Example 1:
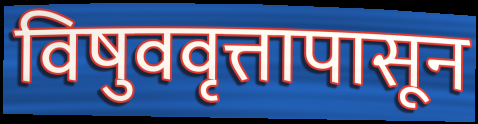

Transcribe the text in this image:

विषुववृत्तापासून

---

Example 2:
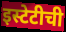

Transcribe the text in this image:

इस्टेटीची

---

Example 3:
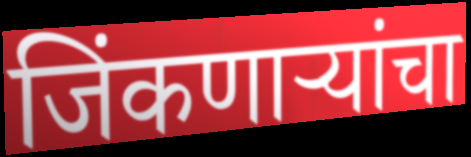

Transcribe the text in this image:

जिंकणाऱ्यांचा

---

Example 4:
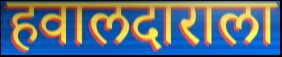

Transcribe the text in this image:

हवालदाराला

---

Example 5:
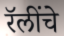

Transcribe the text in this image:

रॅलींचे